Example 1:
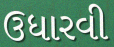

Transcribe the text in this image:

ઉધારવી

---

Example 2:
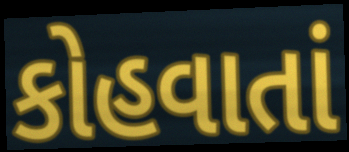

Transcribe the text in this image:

કોહવાતાં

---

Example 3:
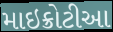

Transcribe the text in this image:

માઇક્રોટીઆ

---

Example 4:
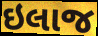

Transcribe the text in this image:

ઇલાજ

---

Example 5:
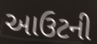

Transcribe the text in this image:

આઉટની